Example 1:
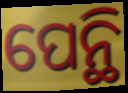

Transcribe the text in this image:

ପେନ୍ଥି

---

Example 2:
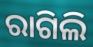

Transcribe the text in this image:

ରାଗିଲି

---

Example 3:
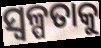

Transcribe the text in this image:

ସ୍ଵଳ୍ପତାକୁ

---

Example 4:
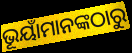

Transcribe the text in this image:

ଭୂୟାଁମାନଙ୍କଠାରୁ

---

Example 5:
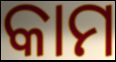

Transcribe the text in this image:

କାମ